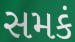
સમકં